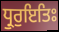
ਧ੍ਰੁਰੁਇਤਿਃ